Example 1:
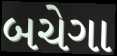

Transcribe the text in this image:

બચેગા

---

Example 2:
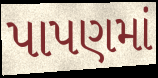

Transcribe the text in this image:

પાપણમાં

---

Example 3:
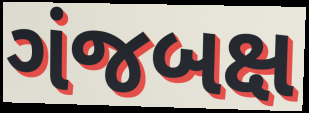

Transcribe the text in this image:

ગંજબક્ષ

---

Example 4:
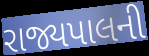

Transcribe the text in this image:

રાજ્યપાલની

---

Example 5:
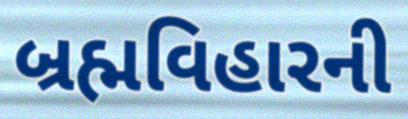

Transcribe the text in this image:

બ્રહ્મવિહારની